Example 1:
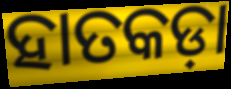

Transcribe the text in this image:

ହାତକଡ଼ା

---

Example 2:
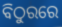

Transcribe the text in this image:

ବିଠୁରରେ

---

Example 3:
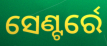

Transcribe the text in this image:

ସେଣ୍ଟର୍ରେ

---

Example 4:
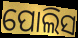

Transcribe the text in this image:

ପୋଲିସ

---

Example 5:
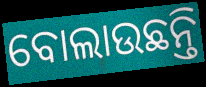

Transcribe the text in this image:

ବୋଲାଉଛନ୍ତି